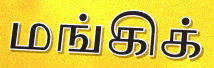
மங்கிக்